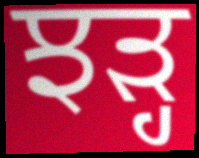
ਝੜ੍ਹ